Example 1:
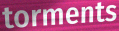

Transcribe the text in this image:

torments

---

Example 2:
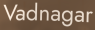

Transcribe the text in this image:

Vadnagar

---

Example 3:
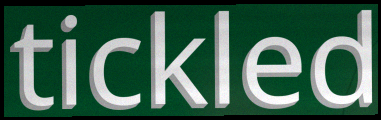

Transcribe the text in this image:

tickled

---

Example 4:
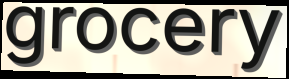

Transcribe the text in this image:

grocery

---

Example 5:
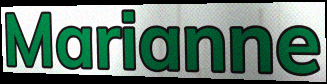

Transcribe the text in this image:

Marianne